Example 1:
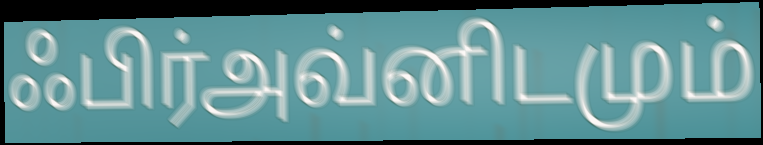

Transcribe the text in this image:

ஃபிர்அவ்னிடமும்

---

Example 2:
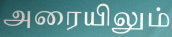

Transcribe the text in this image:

அரையிலும்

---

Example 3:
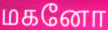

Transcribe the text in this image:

மகனோ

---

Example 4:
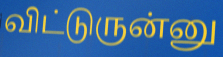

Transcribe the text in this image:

விட்டுருன்னு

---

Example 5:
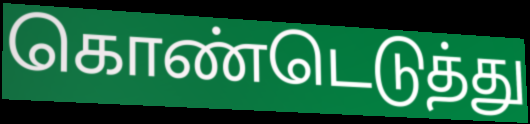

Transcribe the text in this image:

கொண்டெடுத்து